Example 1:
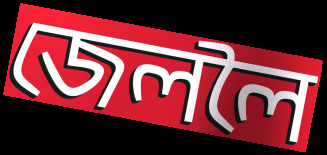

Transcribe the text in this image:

জেললৈ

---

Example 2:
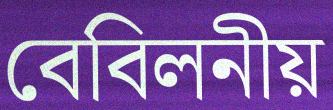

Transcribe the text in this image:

বেবিলনীয়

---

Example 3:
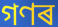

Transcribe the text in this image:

গণৰ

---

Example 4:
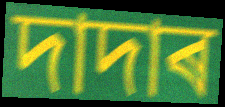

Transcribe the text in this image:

দাদাৰ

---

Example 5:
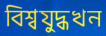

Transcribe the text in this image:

বিশ্বযুদ্ধখন